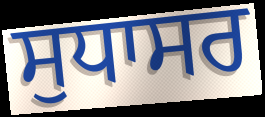
ਸੁਧਾਸਰ